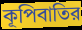
কূপিবাতির